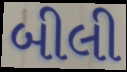
બીલી